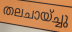
തലചായ്ച്ചു